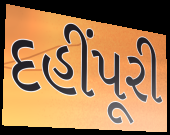
દહીંપૂરી